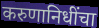
करुणानिधींचा